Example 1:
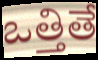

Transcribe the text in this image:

ఒత్తితే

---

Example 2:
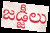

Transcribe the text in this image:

జడ్జీలు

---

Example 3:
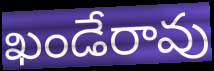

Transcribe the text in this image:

ఖండేరావు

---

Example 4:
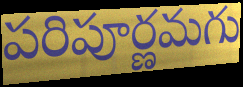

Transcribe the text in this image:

పరిపూర్ణమగు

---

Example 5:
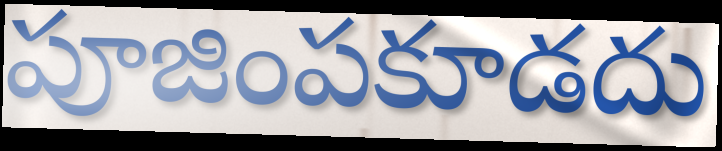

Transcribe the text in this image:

పూజింపకూడదు